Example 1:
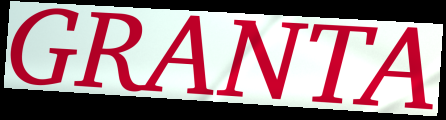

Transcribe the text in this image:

GRANTA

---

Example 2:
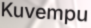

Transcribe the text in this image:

Kuvempu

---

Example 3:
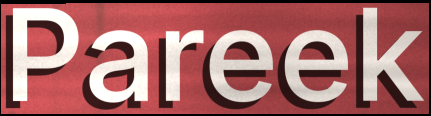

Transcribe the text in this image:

Pareek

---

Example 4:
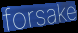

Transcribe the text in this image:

forsake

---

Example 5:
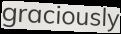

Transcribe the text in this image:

graciously